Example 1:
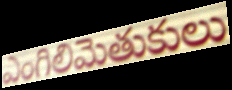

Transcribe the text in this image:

ఎంగిలిమెతుకులు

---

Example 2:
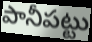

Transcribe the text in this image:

పానీపట్టు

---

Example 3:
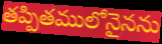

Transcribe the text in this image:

తప్పితములోనైనను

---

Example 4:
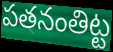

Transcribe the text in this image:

పతనంతిట్ట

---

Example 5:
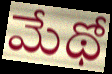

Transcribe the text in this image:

మేథో